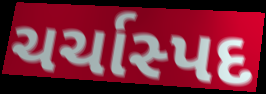
ચર્ચાસ્પદ